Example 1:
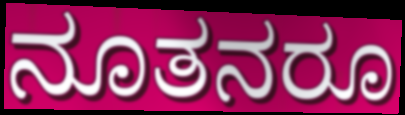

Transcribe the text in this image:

ನೂತನರೂ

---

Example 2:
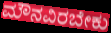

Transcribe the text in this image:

ಮೌನವಿರಬೇಕು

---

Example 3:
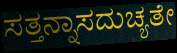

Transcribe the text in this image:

ಸತ್ತನ್ನಾಸದುಚ್ಯತೇ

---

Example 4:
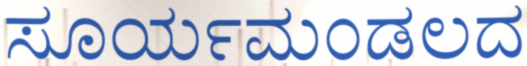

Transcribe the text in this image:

ಸೂರ್ಯಮಂಡಲದ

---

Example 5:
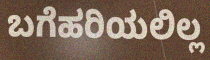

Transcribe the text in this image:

ಬಗೆಹರಿಯಲಿಲ್ಲ